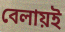
বেলায়ই